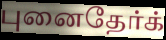
புனைதேர்க்